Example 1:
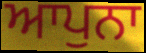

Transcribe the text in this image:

ਆਪੁਨਾ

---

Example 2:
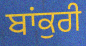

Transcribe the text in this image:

ਬਾਂਕੁਰੀ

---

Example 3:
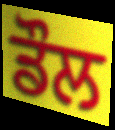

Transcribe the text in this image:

ਡੌਲ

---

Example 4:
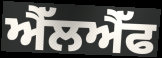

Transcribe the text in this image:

ਐੱਲਐੱਫ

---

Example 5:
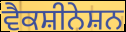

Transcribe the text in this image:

ਵੈਕਸ਼ੀਨੇਸ਼ਨ